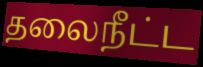
தலைநீட்ட